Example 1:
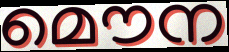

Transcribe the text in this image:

മൌന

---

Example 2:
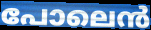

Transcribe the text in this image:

പോലെൻ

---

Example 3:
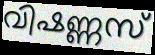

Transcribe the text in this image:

വിഷണ്ണസ്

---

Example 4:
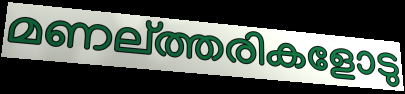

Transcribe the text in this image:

മണല്ത്തരികളോടു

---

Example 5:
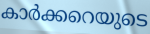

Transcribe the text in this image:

കാർക്കറെയുടെ